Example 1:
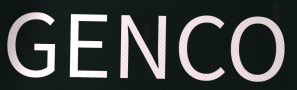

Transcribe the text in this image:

GENCO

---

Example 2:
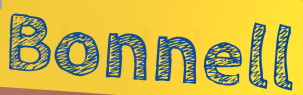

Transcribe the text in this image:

Bonnell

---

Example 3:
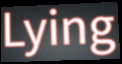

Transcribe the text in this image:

Lying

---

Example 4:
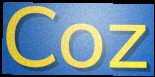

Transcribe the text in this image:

Coz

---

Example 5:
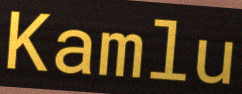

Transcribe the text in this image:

Kamlu